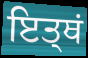
ਇਤ੍ਥਂ